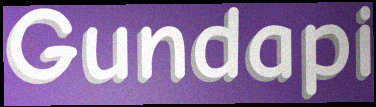
Gundapi